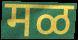
मळ